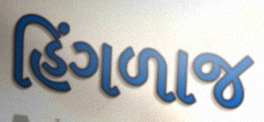
હિંગળાજ